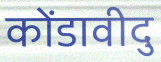
कोंडावीदु